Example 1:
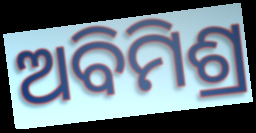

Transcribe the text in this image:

ଅବିମିଶ୍ର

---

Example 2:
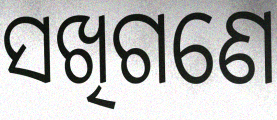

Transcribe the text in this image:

ସଖିଗଣେ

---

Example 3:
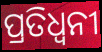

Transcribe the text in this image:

ପ୍ରତିଧ୍ଵନୀ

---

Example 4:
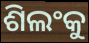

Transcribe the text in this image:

ଶିଲଂକୁ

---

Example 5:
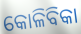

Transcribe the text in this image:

କୋଳିବିକା